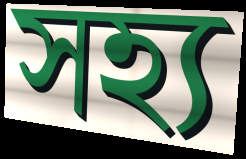
সহ্য